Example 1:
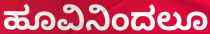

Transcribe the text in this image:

ಹೂವಿನಿಂದಲೂ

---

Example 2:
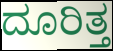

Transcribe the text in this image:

ದೂರಿತ್ತ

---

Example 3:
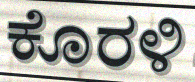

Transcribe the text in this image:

ಕೊರಳಿ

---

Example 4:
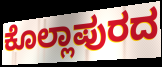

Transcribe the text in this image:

ಕೊಲ್ಲಾಪುರದ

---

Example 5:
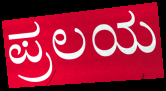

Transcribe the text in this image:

ಪ್ರಲಯ